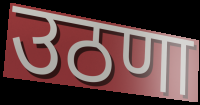
उठणा